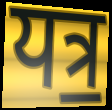
यत्र॒